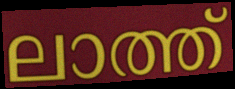
ലാത്ത്